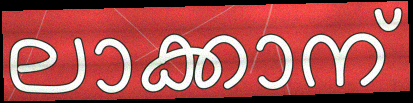
ലാക്കാന്